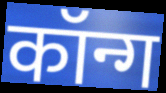
कॉन्ग